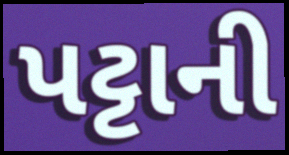
પટ્ટાની